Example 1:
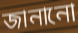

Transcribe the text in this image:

জানানো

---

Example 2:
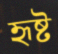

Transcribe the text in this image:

হৃষ্ট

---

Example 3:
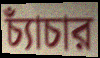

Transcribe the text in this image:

চ্যাঁচার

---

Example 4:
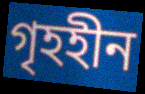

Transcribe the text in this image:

গৃহহীন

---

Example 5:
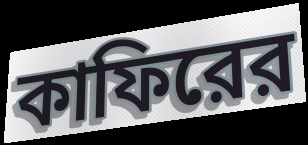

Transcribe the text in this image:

কাফিরের